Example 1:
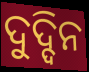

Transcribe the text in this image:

ଦୁଦ୍ଦିନ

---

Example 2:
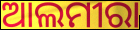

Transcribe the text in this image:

ଆଲମୀରା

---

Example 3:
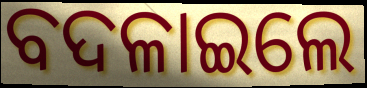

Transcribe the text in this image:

ବଦଳାଇଲେ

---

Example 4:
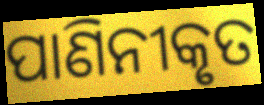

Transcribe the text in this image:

ପାଣିନୀକୃତ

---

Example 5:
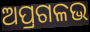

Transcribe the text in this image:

ଅପ୍ରଗଳଭ